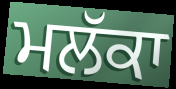
ਮਲੱਕਾ